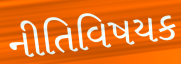
નીતિવિષયક